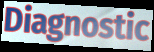
Diagnostic